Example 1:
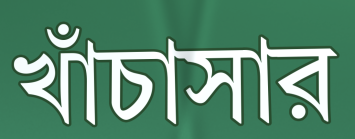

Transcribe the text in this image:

খাঁচাসার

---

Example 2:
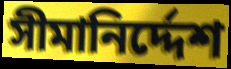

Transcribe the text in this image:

সীমানির্দ্দেশ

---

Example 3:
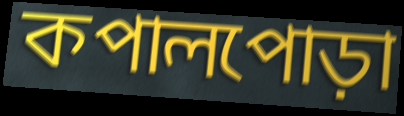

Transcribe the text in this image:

কপালপোড়া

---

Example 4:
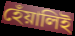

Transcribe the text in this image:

হেঁয়ালিই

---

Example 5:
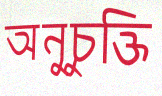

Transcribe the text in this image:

অনুচুক্তি